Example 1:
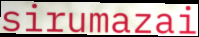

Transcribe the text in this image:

sirumazai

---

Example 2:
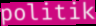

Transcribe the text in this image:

politik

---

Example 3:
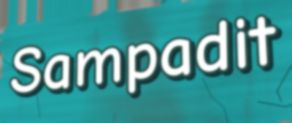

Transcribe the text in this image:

Sampadit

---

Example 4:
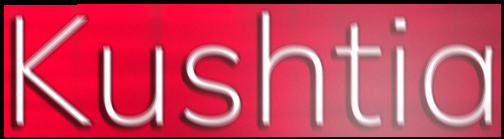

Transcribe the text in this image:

Kushtia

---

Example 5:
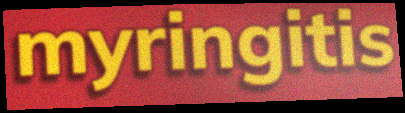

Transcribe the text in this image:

myringitis